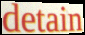
detain